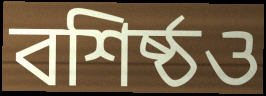
বশিষ্ঠও